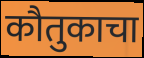
कौतुकाचा